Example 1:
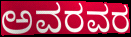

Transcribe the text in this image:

ಅವರವರ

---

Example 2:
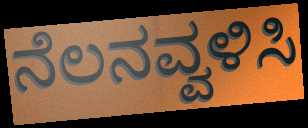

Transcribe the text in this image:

ನೆಲನವ್ವಳಿಸಿ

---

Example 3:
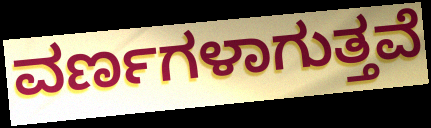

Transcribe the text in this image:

ವರ್ಣಗಳಾಗುತ್ತವೆ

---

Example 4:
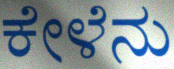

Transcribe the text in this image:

ಕೇಳೆನು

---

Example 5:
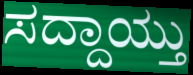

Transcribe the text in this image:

ಸದ್ದಾಯ್ತು